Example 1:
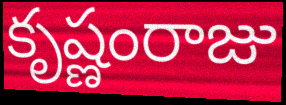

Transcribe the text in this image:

కృష్ణంరాజు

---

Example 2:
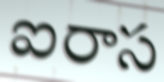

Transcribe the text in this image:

ఐరాస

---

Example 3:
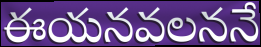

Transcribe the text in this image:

ఈయనవలననే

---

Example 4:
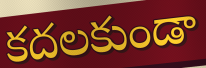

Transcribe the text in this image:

కదలకుండా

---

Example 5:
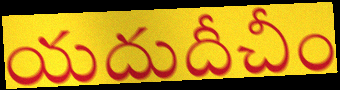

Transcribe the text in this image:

యదుదీచీం